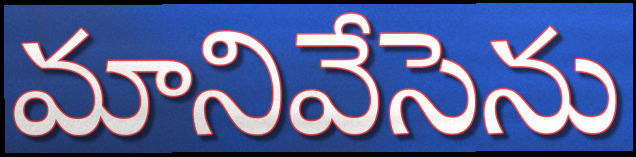
మానివేసెను